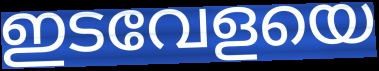
ഇടവേളയെ